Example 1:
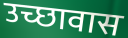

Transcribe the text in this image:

उच्छावास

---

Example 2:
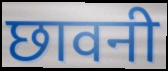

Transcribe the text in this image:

छावनी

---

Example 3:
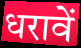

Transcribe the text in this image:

धरावें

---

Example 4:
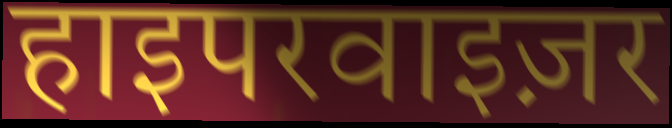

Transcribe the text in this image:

हाइपरवाइज़र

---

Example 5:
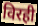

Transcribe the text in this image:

विरही